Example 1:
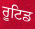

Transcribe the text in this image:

ਰੂਟਿਡ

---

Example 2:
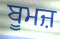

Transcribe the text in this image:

ਬੂਮਜ਼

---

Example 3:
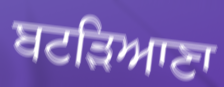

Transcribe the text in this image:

ਬਟੜਿਆਣਾ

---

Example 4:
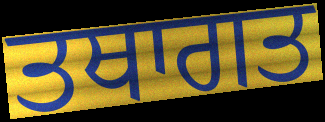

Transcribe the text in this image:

ਤਥਾਗਤ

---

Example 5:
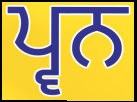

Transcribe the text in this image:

ਪ੍ਵਨ